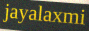
jayalaxmi